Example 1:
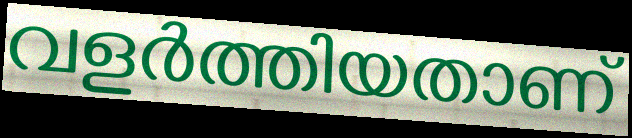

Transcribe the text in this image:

വളർത്തിയതാണ്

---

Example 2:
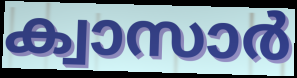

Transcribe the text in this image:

ക്വാസാർ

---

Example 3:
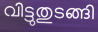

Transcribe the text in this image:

വിട്ടുതുടങ്ങി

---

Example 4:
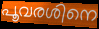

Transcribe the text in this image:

പൂവരശിനെ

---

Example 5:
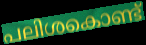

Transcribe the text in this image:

പലിശകൊണ്ട്